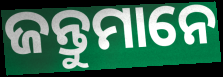
ଜନ୍ତୁମାନେ